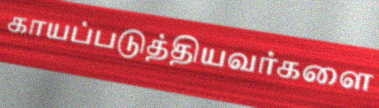
காயப்படுத்தியவர்களை